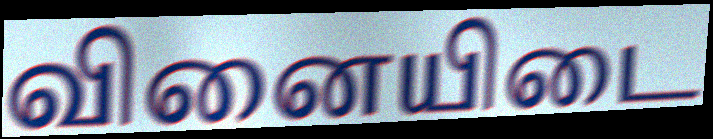
வினையிடை